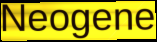
Neogene